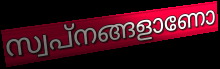
സ്വപ്നങ്ങളാണോ